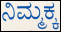
ನಿಮ್ಮಕ್ಕ